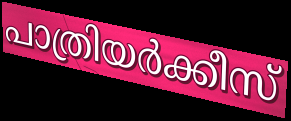
പാത്രിയർക്കീസ്